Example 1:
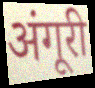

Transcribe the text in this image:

अंगूरी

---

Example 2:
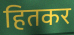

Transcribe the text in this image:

हितकर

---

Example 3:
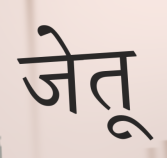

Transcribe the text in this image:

जेतू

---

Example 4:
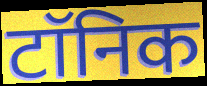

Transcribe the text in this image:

टॉनिक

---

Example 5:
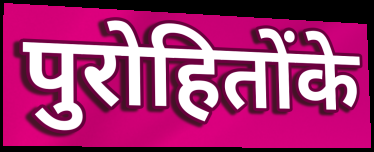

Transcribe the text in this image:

पुरोहितोंके